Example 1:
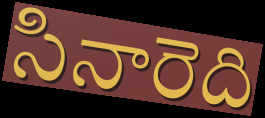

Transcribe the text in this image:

సినారెది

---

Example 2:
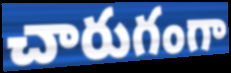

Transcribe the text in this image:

చారుగంగా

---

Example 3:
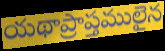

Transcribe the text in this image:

యథాప్రాప్తములైన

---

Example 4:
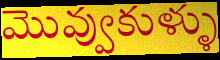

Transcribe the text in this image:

మొవ్వుకుళ్ళు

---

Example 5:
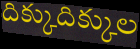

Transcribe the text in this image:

దిక్కుదిక్కుల